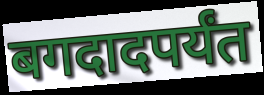
बगदादपर्यंत